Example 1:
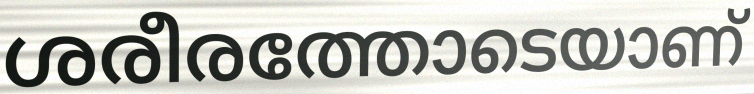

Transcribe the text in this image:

ശരീരത്തോടെയാണ്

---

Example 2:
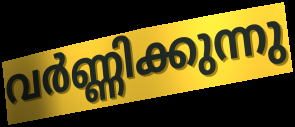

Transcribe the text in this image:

വർണ്ണിക്കുന്നു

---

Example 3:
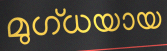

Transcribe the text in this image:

മുഗ്ധയായ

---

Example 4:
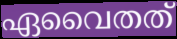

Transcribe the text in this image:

ഏവൈതത്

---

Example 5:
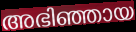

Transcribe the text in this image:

അഭിഞ്ഞായ